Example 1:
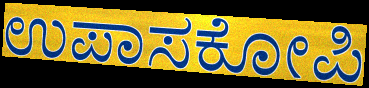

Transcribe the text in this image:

ಉಪಾಸಕೋಪಿ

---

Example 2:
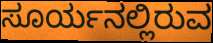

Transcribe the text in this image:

ಸೂರ್ಯನಲ್ಲಿರುವ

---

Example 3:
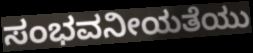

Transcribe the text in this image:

ಸಂಭವನೀಯತೆಯು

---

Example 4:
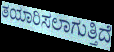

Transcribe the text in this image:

ತಯಾರಿಸಲಾಗುತ್ತಿದೆ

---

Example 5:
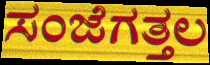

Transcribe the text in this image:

ಸಂಜೆಗತ್ತಲ